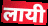
लायी